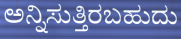
ಅನ್ನಿಸುತ್ತಿರಬಹುದು